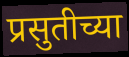
प्रसुतीच्या